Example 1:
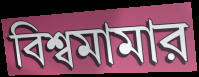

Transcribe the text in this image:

বিশ্বমামার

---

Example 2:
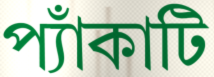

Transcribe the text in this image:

প্যাঁকাটি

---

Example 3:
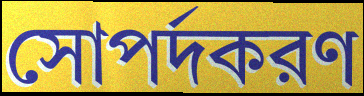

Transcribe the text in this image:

সোপর্দকরণ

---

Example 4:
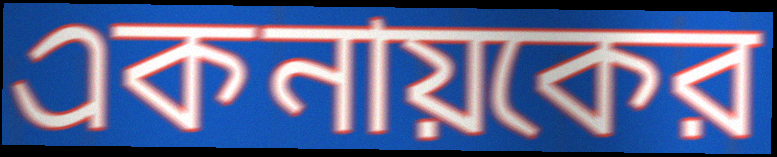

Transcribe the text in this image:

একনায়কের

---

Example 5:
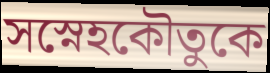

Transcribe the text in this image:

সস্নেহকৌতুকে